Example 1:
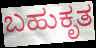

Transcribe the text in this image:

ಬಹುಕೃತ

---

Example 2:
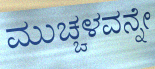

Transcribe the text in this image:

ಮುಚ್ಚಳವನ್ನೇ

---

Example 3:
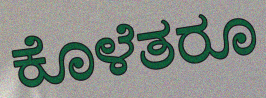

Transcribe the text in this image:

ಕೊಳೆತರೂ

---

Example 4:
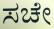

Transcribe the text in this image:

ಸಚೇ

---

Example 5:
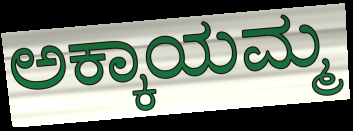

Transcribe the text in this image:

ಅಕ್ಕಾಯಮ್ಮ